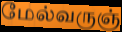
மேல்வருஞ்